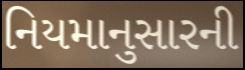
નિયમાનુસારની